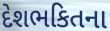
દેશભકિતના